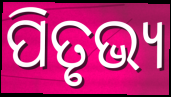
ପିତୃଭ୍ୟ